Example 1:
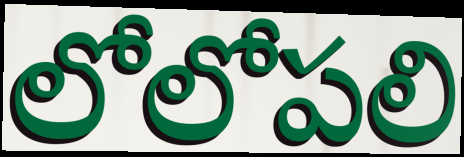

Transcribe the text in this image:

లోలోపలి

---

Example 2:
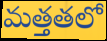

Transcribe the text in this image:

మత్తతలో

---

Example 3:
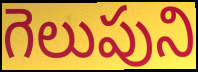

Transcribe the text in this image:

గెలుపుని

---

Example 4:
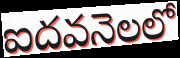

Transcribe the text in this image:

ఐదవనెలలో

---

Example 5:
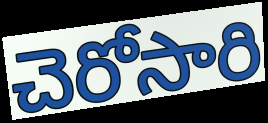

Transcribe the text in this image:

చెరోసారి